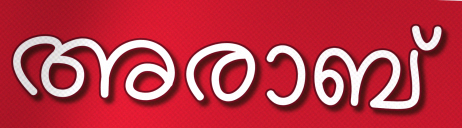
അരാബ്